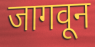
जागवून